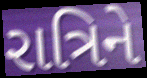
રાત્રિને